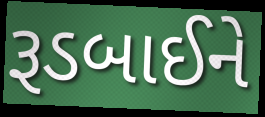
રૂડબાઈને